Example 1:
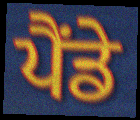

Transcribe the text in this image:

ਪੈਂਡੇ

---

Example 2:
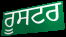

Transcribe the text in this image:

ਰੂਸਟਰ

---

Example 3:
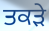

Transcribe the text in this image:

ਤਕੜੇ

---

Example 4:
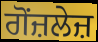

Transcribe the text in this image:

ਗੋਂਜ਼ਲੇਜ਼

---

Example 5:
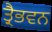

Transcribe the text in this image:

ਤ੍ਰੈਭਵਨ